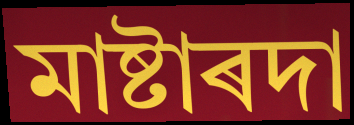
মাষ্টাৰদা